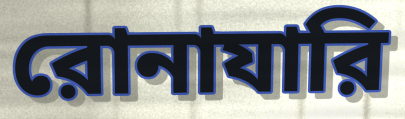
রোনাযারি